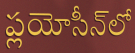
ప్లయోసీన్‌లో